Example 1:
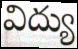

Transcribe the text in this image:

విద్యు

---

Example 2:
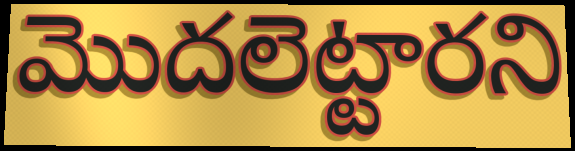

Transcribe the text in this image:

మొదలెట్టారని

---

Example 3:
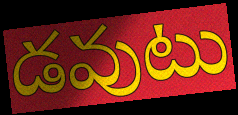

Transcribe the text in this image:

డవుటు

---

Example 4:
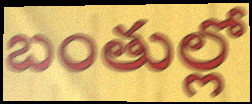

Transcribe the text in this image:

బంతుల్లో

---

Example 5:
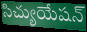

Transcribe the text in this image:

సిచ్యుయేషన్